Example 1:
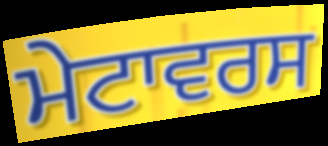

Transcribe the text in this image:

ਮੇਟਾਵਰਸ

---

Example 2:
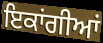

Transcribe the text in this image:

ਇਕਾਂਗੀਆਂ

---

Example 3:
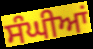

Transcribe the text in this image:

ਸੰਘੀਆਂ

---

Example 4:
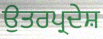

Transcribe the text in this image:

ਉਤਰਪ੍ਰਦੇਸ਼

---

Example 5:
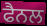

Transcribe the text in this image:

ਫੈਨਲ